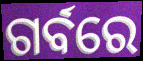
ଗର୍ବରେ